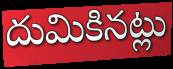
దుమికినట్లు